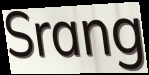
Srang